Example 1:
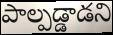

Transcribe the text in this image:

పాల్పడ్డాడని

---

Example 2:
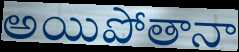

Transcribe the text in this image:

అయిపోతానా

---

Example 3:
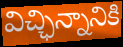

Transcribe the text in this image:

విచ్ఛిన్నానికి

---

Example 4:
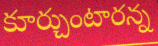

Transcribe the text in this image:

కూర్చుంటారన్న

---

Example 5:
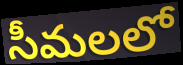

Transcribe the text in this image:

సీమలలో